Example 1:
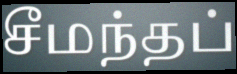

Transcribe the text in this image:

சீமந்தப்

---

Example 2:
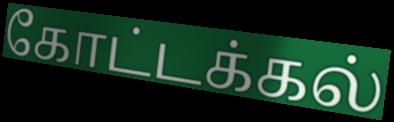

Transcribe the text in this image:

கோட்டக்கல்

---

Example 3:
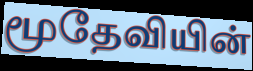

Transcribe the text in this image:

மூதேவியின்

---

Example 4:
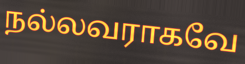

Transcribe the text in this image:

நல்லவராகவே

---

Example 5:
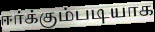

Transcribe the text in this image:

ஈர்க்கும்படியாக